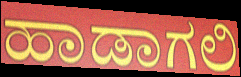
ಹಾಡಾಗಲಿ